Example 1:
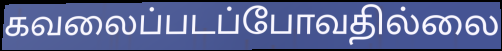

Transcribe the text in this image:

கவலைப்படப்போவதில்லை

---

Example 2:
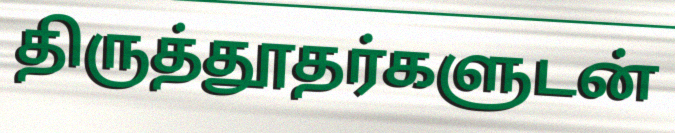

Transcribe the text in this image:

திருத்தூதர்களுடன்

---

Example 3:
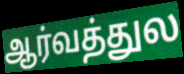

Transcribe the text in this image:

ஆர்வத்துல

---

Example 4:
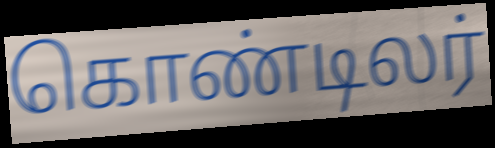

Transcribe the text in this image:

கொண்டிலர்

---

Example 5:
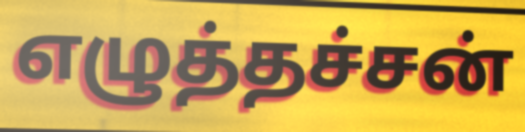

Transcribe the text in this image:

எழுத்தச்சன்